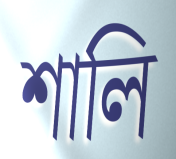
শালি